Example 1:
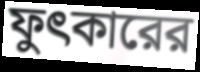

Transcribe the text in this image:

ফুৎকারের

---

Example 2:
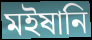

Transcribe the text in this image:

মইষানি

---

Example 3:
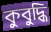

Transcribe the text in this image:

কুবুদ্ধি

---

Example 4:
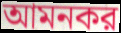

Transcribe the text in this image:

আমনকর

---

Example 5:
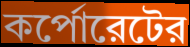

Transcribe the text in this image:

কর্পোরেটের